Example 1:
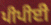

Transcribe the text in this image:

ਪੀਪੀਈ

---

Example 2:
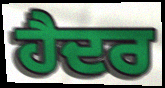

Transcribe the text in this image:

ਹੈਦਰ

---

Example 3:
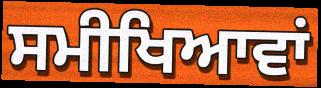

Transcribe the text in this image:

ਸਮੀਖਿਆਵਾਂ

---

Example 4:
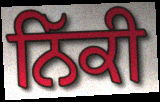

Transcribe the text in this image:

ਨਿੱਕੀ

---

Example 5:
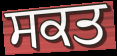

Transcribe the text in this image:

ਸਕਤ